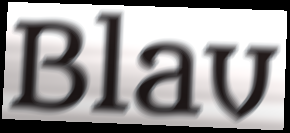
Blau